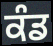
ਕੰਡ